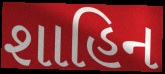
શાહિન